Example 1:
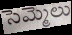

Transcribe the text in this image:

సెమ్మెలు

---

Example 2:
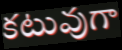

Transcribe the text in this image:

కటువుగా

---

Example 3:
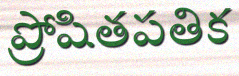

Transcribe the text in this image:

ప్రోషితపతిక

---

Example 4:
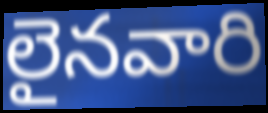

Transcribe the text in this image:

లైనవారి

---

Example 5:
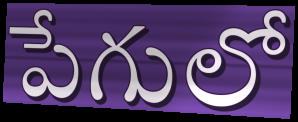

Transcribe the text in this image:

పేగులో